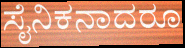
ಸೈನಿಕನಾದರೂ